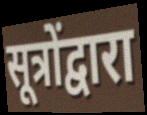
सूत्रोंद्वारा